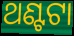
ଥଣ୍ଟଟା